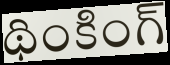
థింకింగ్